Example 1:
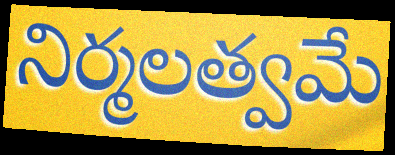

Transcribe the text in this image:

నిర్మలత్వమే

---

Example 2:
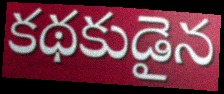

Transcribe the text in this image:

కథకుడైన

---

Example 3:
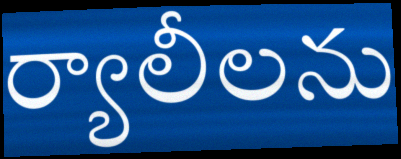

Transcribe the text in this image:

ర్యాలీలను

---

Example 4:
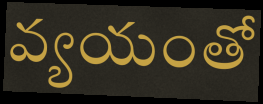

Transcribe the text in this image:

వ్యయంతో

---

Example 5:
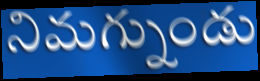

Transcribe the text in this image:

నిమగ్నుండు